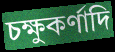
চক্ষুকর্ণাদি